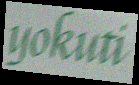
yokuti